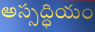
అస్సద్ధియం